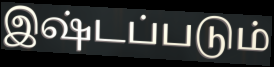
இஷ்டப்படும்